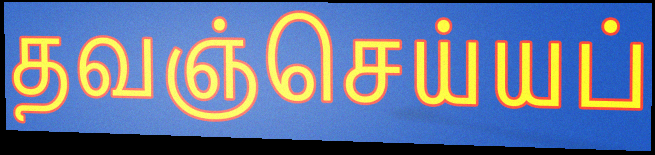
தவஞ்செய்யப்